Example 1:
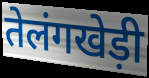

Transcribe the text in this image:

तेलंगखेड़ी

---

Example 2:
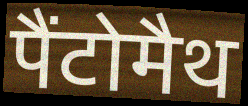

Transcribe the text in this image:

पैंटोमैथ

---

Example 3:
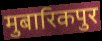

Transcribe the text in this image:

मुबारिकपुर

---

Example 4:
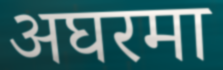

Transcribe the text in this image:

अघरमा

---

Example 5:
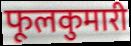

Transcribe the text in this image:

फूलकुमारी